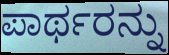
ಪಾರ್ಥರನ್ನು